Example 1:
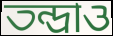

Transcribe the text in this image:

তন্দ্রাও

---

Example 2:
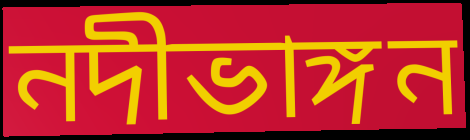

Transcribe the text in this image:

নদীভাঙ্গন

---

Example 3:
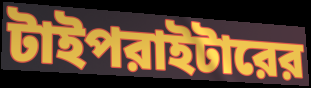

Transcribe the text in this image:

টাইপরাইটারের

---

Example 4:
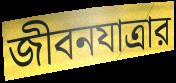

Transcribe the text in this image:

জীবনযাত্রার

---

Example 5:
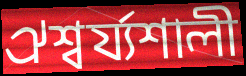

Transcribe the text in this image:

ঐশ্বর্য্যশালী